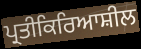
ਪ੍ਰਤੀਕਿਰਿਆਸ਼ੀਲ